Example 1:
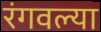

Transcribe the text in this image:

रंगवल्या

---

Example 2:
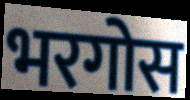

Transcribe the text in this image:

भरगोस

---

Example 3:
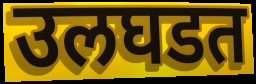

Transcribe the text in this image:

उलघडत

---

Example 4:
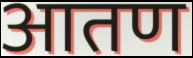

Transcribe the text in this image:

आतण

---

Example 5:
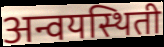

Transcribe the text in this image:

अन्वयस्थिती